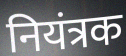
नियंत्रक